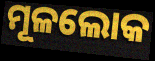
ମୂଳଲୋକ